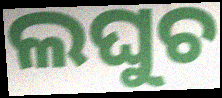
ଲଘୁଚ